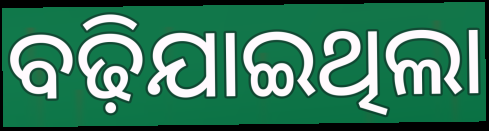
ବଢ଼ିଯାଇଥିଲା